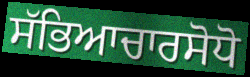
ਸੱਭਿਆਚਾਰਸੋਧੋ